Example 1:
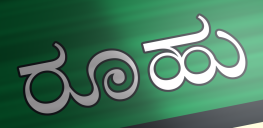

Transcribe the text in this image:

ರೂಹು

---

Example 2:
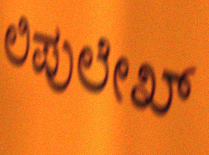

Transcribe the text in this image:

ಲಿಪುಲೇಖ್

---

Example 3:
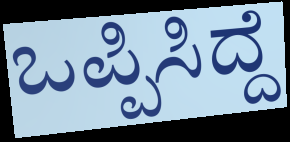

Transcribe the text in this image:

ಒಪ್ಪಿಸಿದ್ದೆ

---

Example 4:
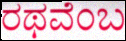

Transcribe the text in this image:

ರಥವೆಂಬ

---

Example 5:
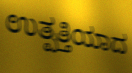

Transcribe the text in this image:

ಉತ್ಪತ್ತಿಯಾದ